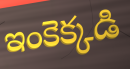
ఇంకెక్కడి